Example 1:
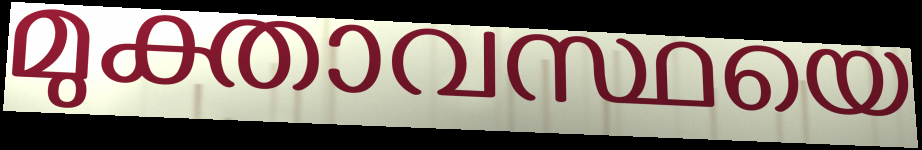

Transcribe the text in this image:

മുക്താവസ്ഥയെ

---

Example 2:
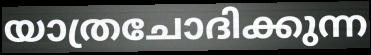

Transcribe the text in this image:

യാത്രചോദിക്കുന്ന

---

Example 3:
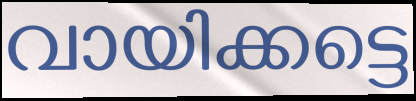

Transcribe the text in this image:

വായിക്കട്ടെ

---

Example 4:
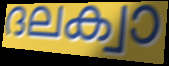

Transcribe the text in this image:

ദലക്വാ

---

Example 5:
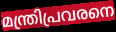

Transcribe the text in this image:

മന്ത്രിപ്രവരനെ